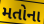
મતોના